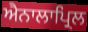
ਐਨਾਲਾਪ੍ਰਿਲ